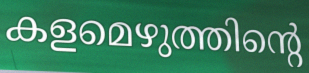
കളമെഴുത്തിന്റെ